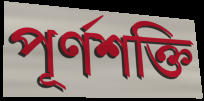
পূর্ণশক্তি